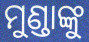
ମୁଣ୍ଡାଙ୍କୁ